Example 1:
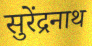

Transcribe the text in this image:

सुरेंद्रनाथ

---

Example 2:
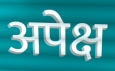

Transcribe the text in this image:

अपेक्ष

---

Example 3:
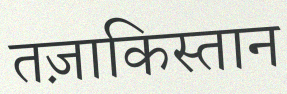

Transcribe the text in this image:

तज़ाकिस्तान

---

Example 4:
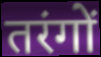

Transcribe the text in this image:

तरंगों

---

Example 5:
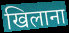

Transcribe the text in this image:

खिलाना